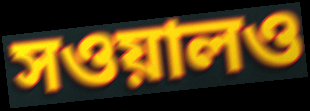
সওয়ালও